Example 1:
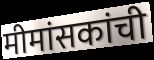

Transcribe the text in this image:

मीमांसकांची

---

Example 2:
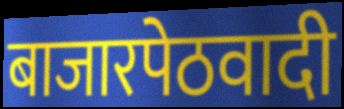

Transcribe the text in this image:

बाजारपेठवादी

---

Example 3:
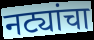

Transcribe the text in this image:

नट्यांचा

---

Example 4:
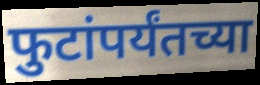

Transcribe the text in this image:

फुटांपर्यंतच्या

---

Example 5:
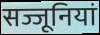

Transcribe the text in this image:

सज्जूनियां